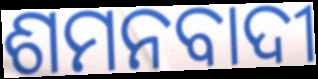
ଶମନବାଦୀ